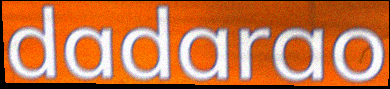
dadarao